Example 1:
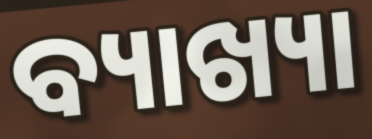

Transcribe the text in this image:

ବ୍ୟାଖ୍ୟା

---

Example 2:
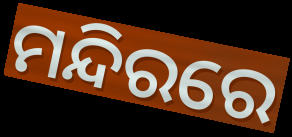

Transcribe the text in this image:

ମନ୍ଦିରରେ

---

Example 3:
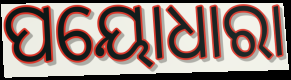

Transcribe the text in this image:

ପୟୋଧାରା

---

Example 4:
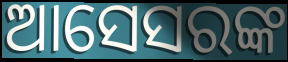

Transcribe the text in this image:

ଆସେସରଙ୍କ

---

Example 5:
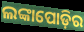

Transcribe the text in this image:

ଲଙ୍କାପୋଡ଼ିର